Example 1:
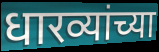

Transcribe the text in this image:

धारव्यांच्या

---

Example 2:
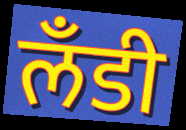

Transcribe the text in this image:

लँडी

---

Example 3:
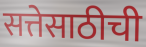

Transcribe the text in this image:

सत्तेसाठीची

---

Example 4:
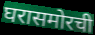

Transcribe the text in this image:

घरासमोरची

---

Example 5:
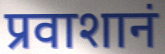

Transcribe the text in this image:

प्रवाशानं